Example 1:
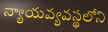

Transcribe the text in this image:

న్యాయవ్యవస్థలోని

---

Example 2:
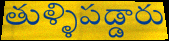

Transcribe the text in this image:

తుళ్ళిపడ్డారు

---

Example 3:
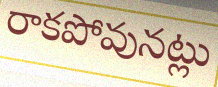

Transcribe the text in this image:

రాకపోవునట్లు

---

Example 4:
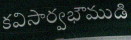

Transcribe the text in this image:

కవిసార్వభౌముడి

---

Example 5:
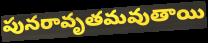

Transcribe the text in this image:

పునరావృతమవుతాయి